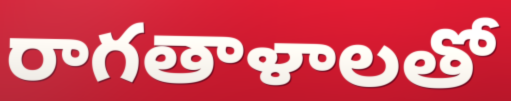
రాగతాళాలతో